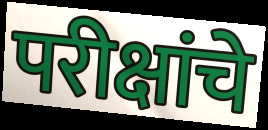
परीक्षांचे